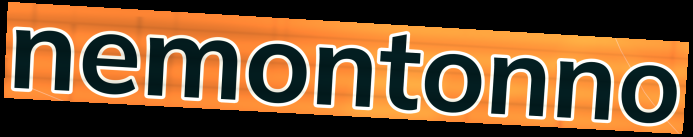
nemontonno